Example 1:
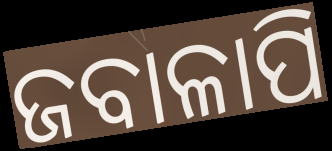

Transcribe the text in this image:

ଜବାଳାପି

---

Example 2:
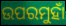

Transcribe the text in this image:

ଉପରମୁହାଁ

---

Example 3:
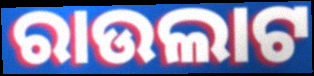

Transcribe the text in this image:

ରାଉଲାଟ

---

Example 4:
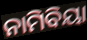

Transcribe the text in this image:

ନାମିବିୟା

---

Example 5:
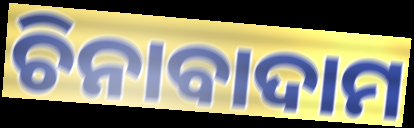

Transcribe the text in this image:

ଚିନାବାଦାମ